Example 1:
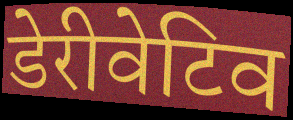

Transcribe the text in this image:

डेरीवेटिव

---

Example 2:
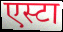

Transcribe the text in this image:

एस्टा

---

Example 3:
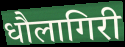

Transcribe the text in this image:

धौलागिरी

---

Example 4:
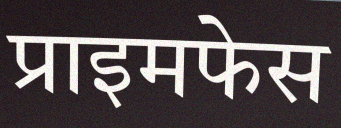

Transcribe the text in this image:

प्राइमफेस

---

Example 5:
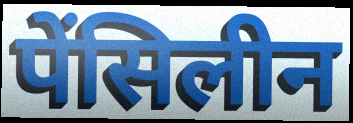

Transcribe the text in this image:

पेंसिलीन